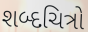
શબ્દચિત્રો